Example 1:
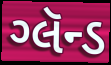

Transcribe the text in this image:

ગ્લૅન્ડ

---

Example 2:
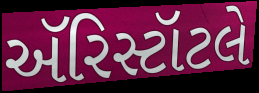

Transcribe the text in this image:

ઍરિસ્ટૉટલે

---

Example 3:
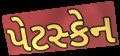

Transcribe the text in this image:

પેટસ્કેન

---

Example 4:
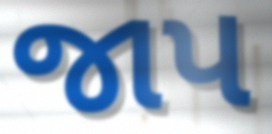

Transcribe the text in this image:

જાપ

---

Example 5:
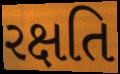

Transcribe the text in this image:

રક્ષતિ